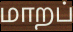
மாறப்